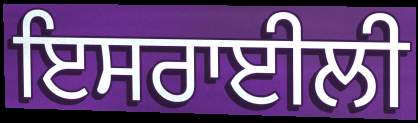
ਇਸਰਾਈਲੀ